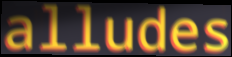
alludes